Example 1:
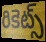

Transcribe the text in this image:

రికెట్స్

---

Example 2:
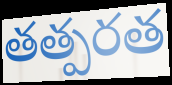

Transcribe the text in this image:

తత్పరత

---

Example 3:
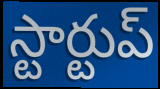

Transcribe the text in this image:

స్టార్టుప్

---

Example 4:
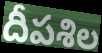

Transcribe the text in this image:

దీపశిల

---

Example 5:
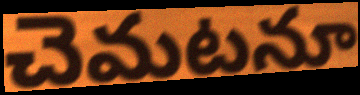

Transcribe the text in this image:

చెమటనూ